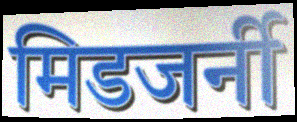
मिडजर्नी